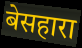
बेसहारा